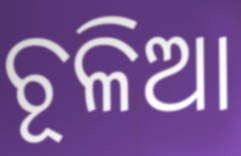
ଚୂଳିଆ